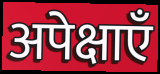
अपेक्षाएँ